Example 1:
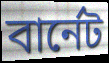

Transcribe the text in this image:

বার্নেট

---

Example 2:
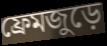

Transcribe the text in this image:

ফ্রেমজুড়ে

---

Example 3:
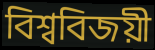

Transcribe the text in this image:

বিশ্ববিজয়ী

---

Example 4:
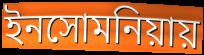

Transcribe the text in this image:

ইনসোমনিয়ায়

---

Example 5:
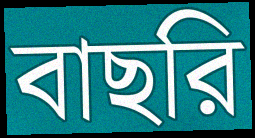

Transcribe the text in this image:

বাছরি